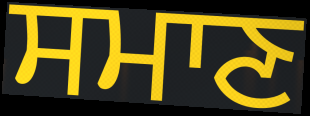
ਸਮਾਣ